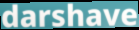
darshave